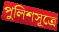
পুলিশসূত্রে